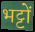
भट्टों